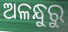
ଅଳନ୍ଧୁରୁ